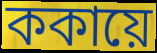
ককায়ে